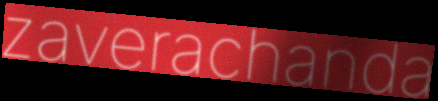
zaverachanda